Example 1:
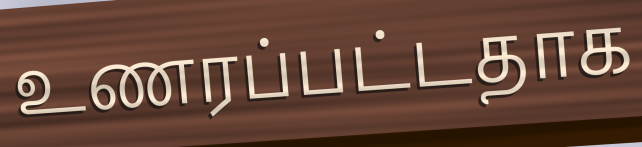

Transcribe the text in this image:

உணரப்பட்டதாக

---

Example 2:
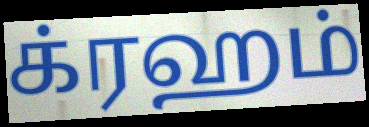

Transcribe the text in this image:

க்ரஹம்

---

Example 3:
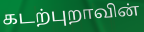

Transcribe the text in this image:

கடற்புறாவின்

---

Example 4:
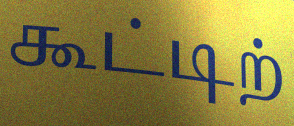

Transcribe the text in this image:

கூட்டிற்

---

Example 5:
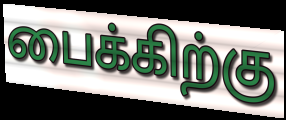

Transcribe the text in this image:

பைக்கிற்கு